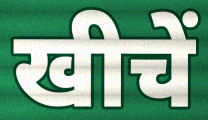
खीचें